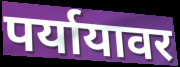
पर्यायावर